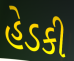
હેડકી